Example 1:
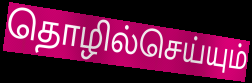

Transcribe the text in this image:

தொழில்செய்யும்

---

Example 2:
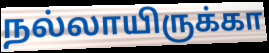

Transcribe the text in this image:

நல்லாயிருக்கா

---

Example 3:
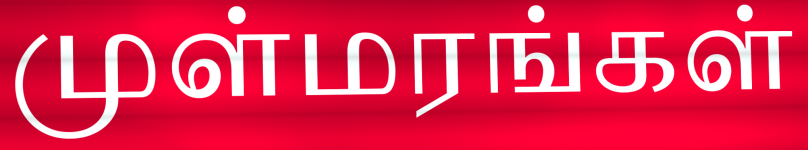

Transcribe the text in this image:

முள்மரங்கள்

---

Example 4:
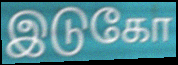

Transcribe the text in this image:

இடுகோ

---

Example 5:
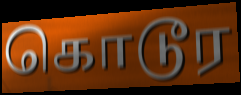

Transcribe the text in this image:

கொடூர